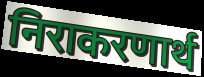
निराकरणार्थ